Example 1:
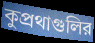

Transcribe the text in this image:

কুপ্রথাগুলির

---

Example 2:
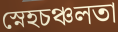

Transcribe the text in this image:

স্নেহচঞ্চলতা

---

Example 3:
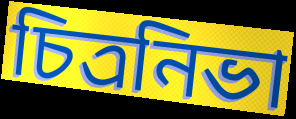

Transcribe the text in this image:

চিত্রনিভা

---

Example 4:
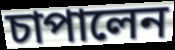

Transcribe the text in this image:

চাপালেন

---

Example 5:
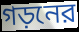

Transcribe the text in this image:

গড়নের